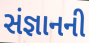
સંજ્ઞાનની